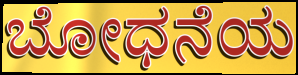
ಬೋಧನೆಯ